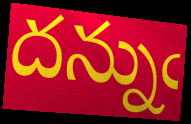
దన్నుఁ